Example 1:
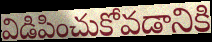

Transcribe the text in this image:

విడిపించుకోవడానికి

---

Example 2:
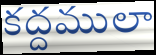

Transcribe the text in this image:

కద్దములా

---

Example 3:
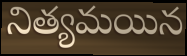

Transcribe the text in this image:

నిత్యమయిన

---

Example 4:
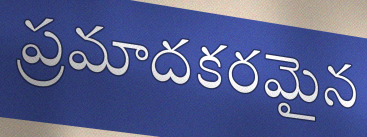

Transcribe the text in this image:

ప్రమాదకరమైన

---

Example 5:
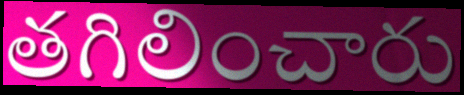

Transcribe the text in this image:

తగిలించారు